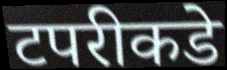
टपरीकडे